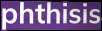
phthisis